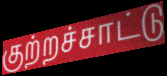
குற்றச்சாட்டு